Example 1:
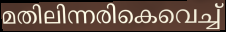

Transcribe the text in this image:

മതിലിന്നരികെവെച്ച്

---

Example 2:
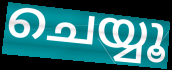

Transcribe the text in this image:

ചെയ്യൂ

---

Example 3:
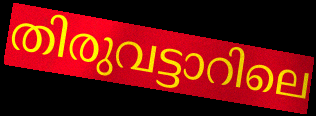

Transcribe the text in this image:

തിരുവട്ടാറിലെ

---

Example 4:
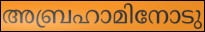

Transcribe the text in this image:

അബ്രഹാമിനോടു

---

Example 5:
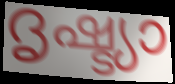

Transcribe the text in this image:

ദൃഷ്ട്യാ